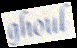
ghoul